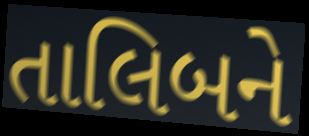
તાલિબને